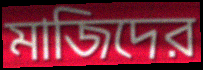
মাজিদের